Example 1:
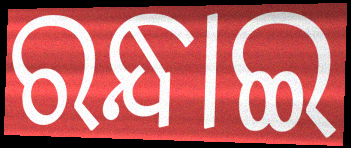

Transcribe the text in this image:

ରନ୍ଧାଇ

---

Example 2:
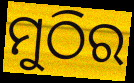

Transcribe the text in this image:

ମୁଠିର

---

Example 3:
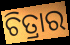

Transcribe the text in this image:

ଚିତ୍ରାର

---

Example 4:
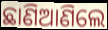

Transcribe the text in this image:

ଛାଣିଆଣିଲେ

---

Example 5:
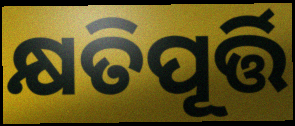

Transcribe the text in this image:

କ୍ଷତିପୂର୍ତ୍ତି